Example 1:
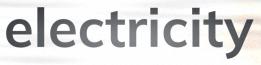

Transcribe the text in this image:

electricity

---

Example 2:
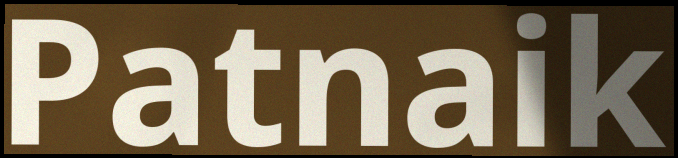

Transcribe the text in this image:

Patnaik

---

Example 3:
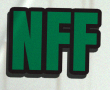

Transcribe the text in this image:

NFF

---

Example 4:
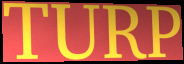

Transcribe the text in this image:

TURP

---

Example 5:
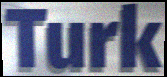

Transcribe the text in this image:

Turk